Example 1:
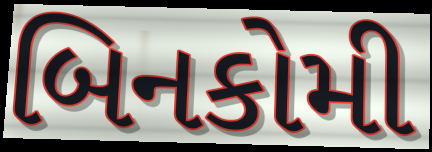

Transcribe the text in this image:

બિનકોમી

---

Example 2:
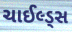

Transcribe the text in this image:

ચાઈલ્ડ્સ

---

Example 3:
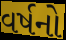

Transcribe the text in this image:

વર્ષનો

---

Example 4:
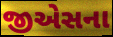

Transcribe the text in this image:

જીએસના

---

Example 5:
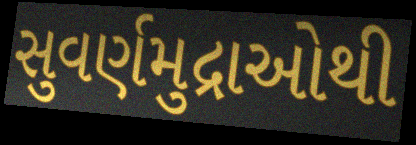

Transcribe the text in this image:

સુવર્ણમુદ્રાઓથી